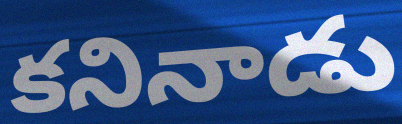
కనినాడు